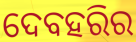
ଦେବହରିର